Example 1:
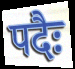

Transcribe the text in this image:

पदैः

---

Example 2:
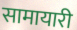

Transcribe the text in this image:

सामायारी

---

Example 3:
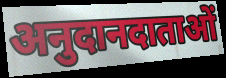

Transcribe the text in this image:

अनुदानदाताओं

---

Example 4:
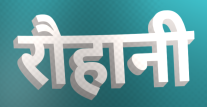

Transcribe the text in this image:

रौहानी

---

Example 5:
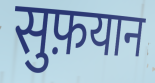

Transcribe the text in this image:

सुफ़यान